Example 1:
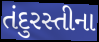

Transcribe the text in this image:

તંદુરસ્તીના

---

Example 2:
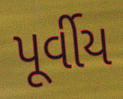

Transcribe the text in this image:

પૂર્વીય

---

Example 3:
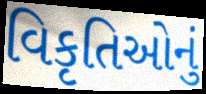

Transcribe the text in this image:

વિકૃતિઓનું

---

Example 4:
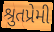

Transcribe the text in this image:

શ્રુતપ્રેમી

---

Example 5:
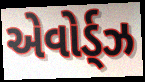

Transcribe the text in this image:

એવોર્ડ્ઝ